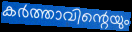
കർത്താവിന്റെയും